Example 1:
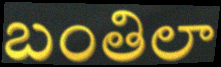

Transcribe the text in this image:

బంతిలా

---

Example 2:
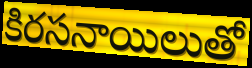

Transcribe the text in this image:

కిరసనాయిలుతో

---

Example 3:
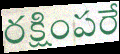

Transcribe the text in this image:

రక్షింపరే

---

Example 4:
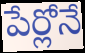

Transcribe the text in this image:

పేర్లోనే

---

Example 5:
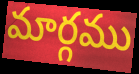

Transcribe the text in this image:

మార్గము